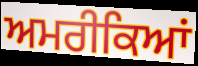
ਅਮਰੀਕਿਆਂ